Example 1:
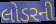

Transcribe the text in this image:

લોડરની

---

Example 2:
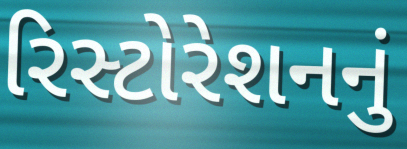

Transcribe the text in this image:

રિસ્ટોરેશનનું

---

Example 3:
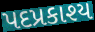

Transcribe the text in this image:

પદપ્રકાશ્ય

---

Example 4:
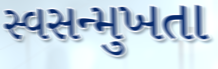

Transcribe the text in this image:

સ્વસન્મુખતા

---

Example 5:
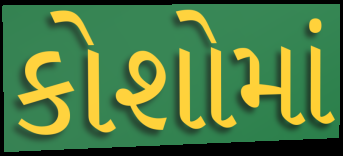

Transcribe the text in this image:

કોશોમાં